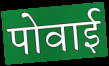
पोवाई